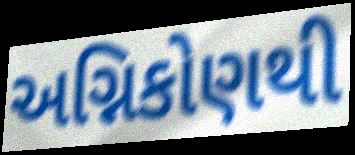
અગ્નિકોણથી